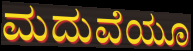
ಮದುವೆಯೂ